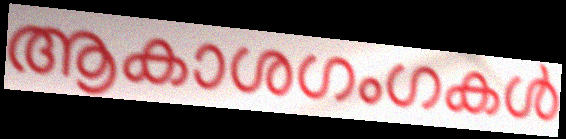
ആകാശഗംഗകൾ